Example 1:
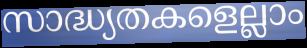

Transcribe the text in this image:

സാദ്ധ്യതകളെല്ലാം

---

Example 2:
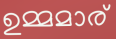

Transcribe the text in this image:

ഉമ്മമാര്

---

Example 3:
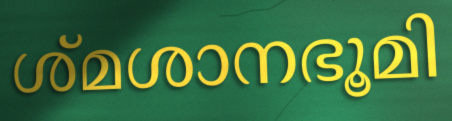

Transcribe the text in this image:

ശ്മശാനഭൂമി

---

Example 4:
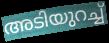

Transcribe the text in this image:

അടിയുറച്ച്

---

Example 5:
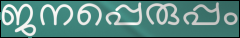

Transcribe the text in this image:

ജനപ്പെരുപ്പം